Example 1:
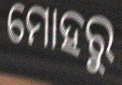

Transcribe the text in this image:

ମୋହରୁ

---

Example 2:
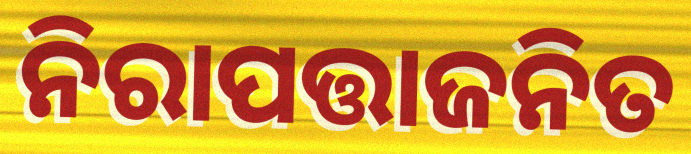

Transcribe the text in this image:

ନିରାପତ୍ତାଜନିତ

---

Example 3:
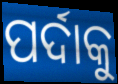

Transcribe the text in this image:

ପର୍ଦାକୁ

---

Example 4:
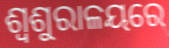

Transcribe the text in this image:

ଶ୍ୱଶୁରାଳୟରେ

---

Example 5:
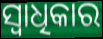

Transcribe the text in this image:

ସ୍ଵାଧିକାର